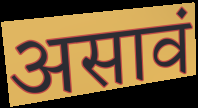
असावं